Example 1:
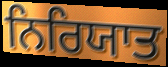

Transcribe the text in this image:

ਨਿਰਿਯਾਤ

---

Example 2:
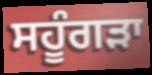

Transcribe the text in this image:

ਸਹੂੰਗੜਾ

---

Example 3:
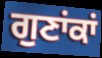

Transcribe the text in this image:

ਗੁਣਾਂਕਾਂ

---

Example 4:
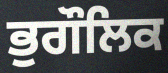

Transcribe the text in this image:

ਭੁਗੌਲਿਕ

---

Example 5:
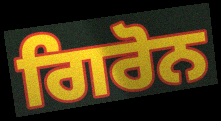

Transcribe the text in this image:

ਗਿਰੋਨ